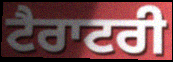
ਟੈਰਾਟਰੀ